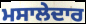
ਮਸਾਲੇਦਾਰ